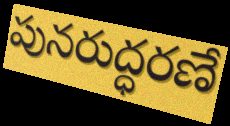
పునరుద్ధరణే